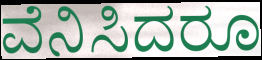
ವೆನಿಸಿದರೂ